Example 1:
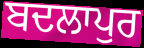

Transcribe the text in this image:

ਬਦਲਾਪੁਰ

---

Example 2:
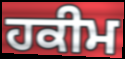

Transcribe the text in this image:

ਹਕੀਮ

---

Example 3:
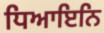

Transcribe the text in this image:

ਧਿਆਇਨਿ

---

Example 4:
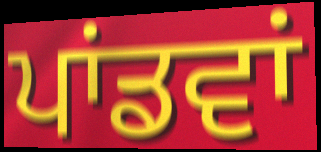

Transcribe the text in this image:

ਪਾਂਡਵਾਂ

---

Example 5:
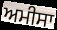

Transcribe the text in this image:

ਅਮੀਸਾ